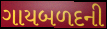
ગાયબળદની